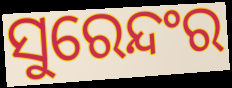
ସୁରେନ୍ଦଂର